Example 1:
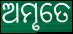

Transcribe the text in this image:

ଅମୃତେ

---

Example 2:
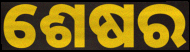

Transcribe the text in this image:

ଶେଷର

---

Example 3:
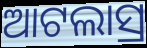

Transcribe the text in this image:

ଆଟଲାସ୍ର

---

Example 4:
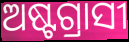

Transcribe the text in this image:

ଅଷ୍ଟଗ୍ରାସୀ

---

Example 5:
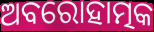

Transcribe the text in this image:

ଅବରୋହାତ୍ମକ